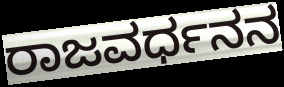
ರಾಜವರ್ಧನನ